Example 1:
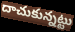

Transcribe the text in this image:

దాచుకున్నట్టు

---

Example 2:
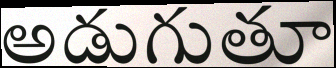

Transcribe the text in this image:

అడుగుతూ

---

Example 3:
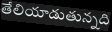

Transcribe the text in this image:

తేలియాడుతున్నది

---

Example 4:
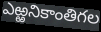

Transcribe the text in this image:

ఎఱ్ఱనికాంతిగల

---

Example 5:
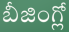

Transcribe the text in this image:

బీజింగ్లో